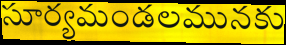
సూర్యమండలమునకు